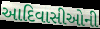
આદિવાસીઓની